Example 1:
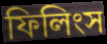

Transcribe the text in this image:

ফিলিংস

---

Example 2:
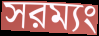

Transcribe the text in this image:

সরম্যং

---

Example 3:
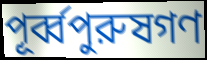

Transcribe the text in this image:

পূর্ব্বপুরুষগণ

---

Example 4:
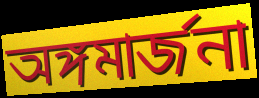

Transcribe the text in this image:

অঙ্গমার্জনা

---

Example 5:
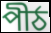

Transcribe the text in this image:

পীঠ